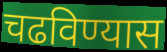
चढविण्यास